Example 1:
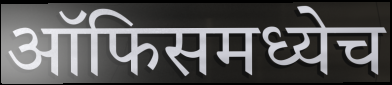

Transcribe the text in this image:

ऑफिसमध्येच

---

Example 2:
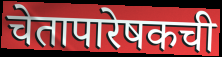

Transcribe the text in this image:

चेतापारेषकची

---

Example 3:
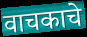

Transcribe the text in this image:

वाचकाचे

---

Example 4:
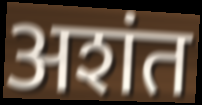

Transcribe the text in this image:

अशंत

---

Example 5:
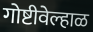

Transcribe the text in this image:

गोष्टीवेल्हाळ